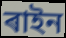
ৰাইন